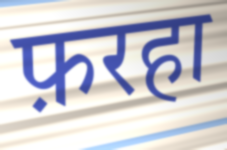
फ़रहा